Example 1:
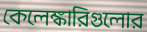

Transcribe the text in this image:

কেলেঙ্কারিগুলোর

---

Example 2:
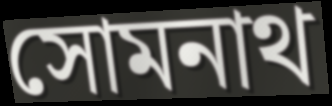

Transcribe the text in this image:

সোমনাথ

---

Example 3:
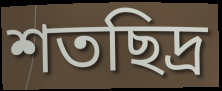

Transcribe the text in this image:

শতছিদ্র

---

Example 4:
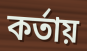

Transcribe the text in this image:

কর্তায়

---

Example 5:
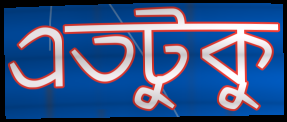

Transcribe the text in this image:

এতটুকু